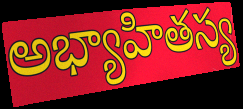
అభ్యాహితస్య